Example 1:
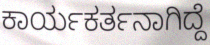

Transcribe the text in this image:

ಕಾರ್ಯಕರ್ತನಾಗಿದ್ದೆ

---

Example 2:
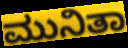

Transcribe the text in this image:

ಮುನಿತಾ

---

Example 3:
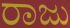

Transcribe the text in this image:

ರಾಜು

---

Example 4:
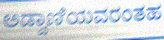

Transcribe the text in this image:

ಅಡ್ವಾಣಿಯವರಂತಹ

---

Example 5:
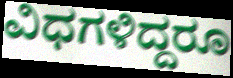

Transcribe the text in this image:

ವಿಧಗಳಿದ್ದರೂ